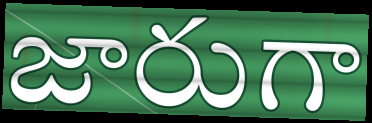
జారుగా